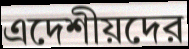
এদেশীয়দের